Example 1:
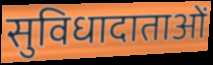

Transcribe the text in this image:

सुविधादाताओं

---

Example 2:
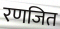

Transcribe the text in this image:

रणजित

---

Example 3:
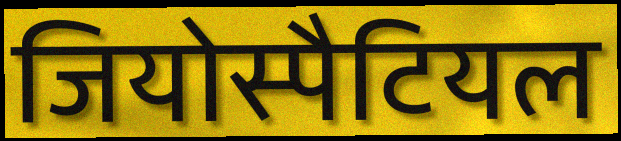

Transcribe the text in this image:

जियोस्पैटियल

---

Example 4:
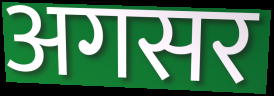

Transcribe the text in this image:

अगसर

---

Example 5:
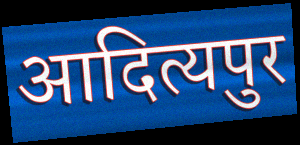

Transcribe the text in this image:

आदित्यपुर